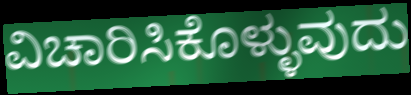
ವಿಚಾರಿಸಿಕೊಳ್ಳುವುದು